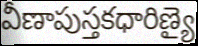
వీణాపుస్తకధారిణ్యై